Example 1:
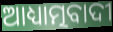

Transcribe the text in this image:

ଆଧ୍ୟାତ୍ମବାଦୀ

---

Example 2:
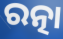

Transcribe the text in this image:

ରତ୍ନା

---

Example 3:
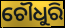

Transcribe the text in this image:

ଚୌଧୁରି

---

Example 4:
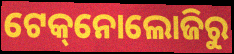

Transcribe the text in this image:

ଟେକ୍‌ନୋଲୋଜିରୁ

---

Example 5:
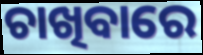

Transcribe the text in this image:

ଚାଖିବାରେ